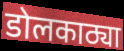
डोलकाठ्या